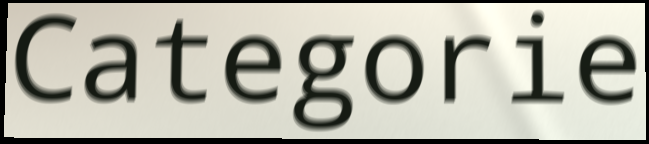
Categorie